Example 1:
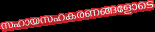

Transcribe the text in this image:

സഹായസഹകരണങ്ങളോടെ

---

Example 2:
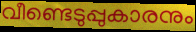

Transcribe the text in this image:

വീണ്ടെടുപ്പുകാരനും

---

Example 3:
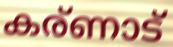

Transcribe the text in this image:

കര്ണാട്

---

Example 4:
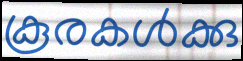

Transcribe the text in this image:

കൂരകൾക്കു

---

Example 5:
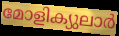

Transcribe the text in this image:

മോളിക്യുലാർ